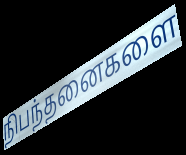
நிபந்தனைகளை